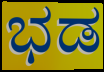
ಭಡ